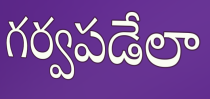
గర్వపడేలా